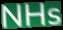
NHs